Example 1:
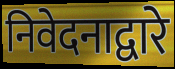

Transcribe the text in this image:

निवेदनाद्वारे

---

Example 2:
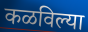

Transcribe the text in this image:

कळविल्या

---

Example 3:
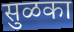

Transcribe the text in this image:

सुळका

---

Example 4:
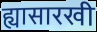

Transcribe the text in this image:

ह्यासारखी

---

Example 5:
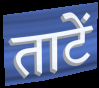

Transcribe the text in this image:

ताटें